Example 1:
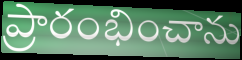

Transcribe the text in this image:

ప్రారంభించాను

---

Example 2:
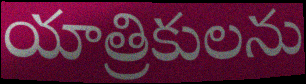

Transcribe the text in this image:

యాత్రికులను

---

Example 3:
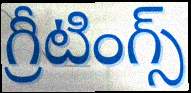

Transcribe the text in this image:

గ్రీటింగ్స్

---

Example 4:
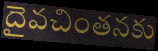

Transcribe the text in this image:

దైవచింతనకు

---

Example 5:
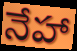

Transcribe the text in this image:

నేహా